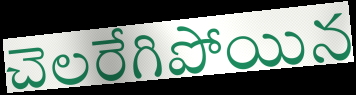
చెలరేగిపోయిన